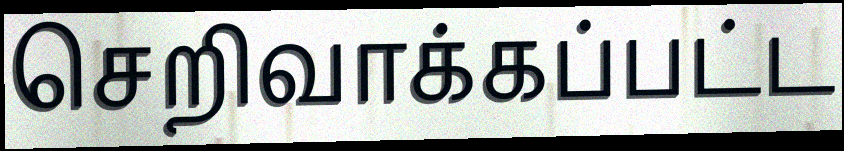
செறிவாக்கப்பட்ட